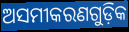
ଅସମୀକରଣଗୁଡ଼ିକ